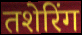
तशेरिंग